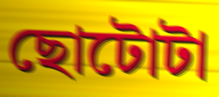
ছোটোটা